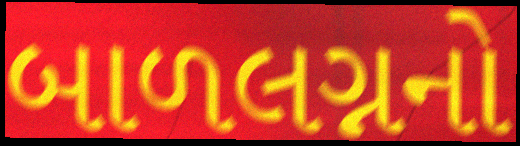
બાળલગ્નનો